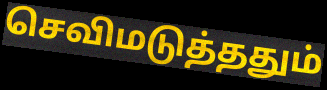
செவிமடுத்ததும்